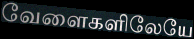
வேளைகளிலேயே